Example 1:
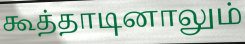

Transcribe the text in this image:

கூத்தாடினாலும்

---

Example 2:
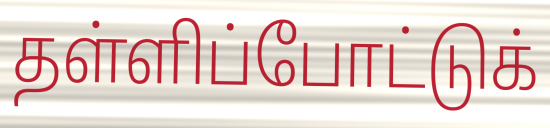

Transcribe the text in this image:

தள்ளிப்போட்டுக்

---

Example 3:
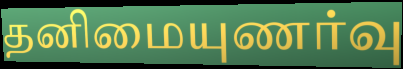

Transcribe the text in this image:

தனிமையுணர்வு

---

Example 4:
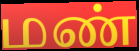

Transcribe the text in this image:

மண்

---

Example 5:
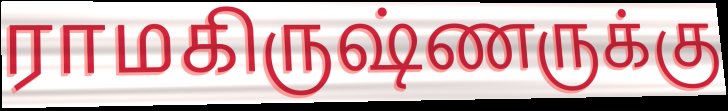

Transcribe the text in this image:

ராமகிருஷ்ணருக்கு